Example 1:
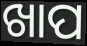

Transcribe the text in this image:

ଖାପ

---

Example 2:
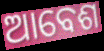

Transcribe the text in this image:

ଆବେଶ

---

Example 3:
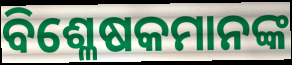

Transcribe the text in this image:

ବିଶ୍ଳେଷକମାନଙ୍କ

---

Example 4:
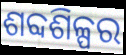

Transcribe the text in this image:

ଶବ୍ଦଶିଳ୍ପର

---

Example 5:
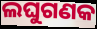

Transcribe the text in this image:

ଲଘୁଗଣକ